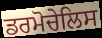
ਡਰਮੋਚੇਲਿਸ